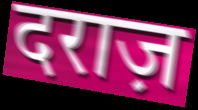
दराज़